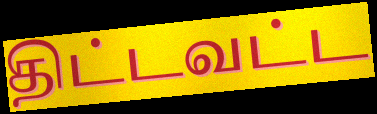
திட்டவட்ட